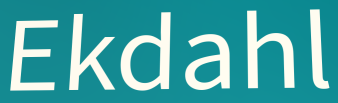
Ekdahl